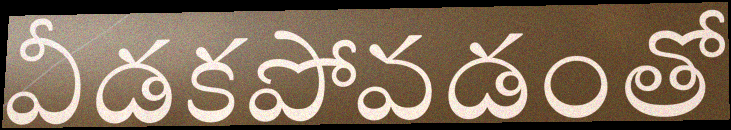
వీడకపోవడంతో